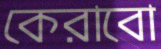
কেরাবো